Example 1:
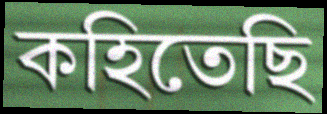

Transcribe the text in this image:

কহিতেছি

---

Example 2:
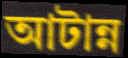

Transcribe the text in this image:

আটান্ন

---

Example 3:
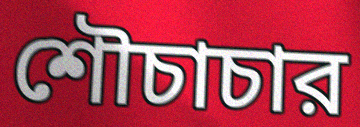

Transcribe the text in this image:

শৌচাচার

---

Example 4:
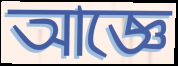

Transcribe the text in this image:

আজ্ঞে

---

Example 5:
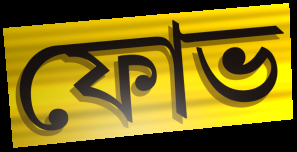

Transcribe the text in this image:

ফোভ